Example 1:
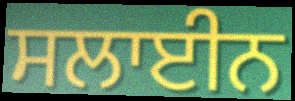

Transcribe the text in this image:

ਸਲਾਈਨ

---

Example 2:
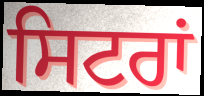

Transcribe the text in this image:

ਸਿਟਰਾਂ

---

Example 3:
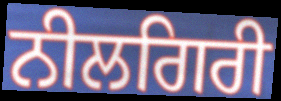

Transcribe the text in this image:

ਨੀਲਗਿਰੀ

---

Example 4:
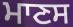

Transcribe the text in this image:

ਮਾਣਸ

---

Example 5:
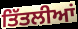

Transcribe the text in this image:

ਤਿੱਤਲੀਆਂ